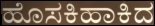
ಹೊಸಕಿಹಾಕಿದ